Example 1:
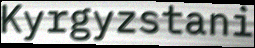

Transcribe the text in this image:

Kyrgyzstani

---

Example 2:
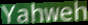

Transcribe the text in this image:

Yahweh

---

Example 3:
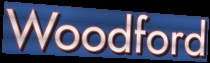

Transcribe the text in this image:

Woodford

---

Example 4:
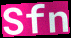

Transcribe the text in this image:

Sfn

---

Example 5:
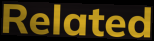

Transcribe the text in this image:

Related